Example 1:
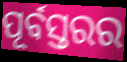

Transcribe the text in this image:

ପୂର୍ବସ୍ତରର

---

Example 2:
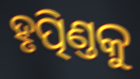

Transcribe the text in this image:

ହୃତ୍ପିଣ୍ତକୁ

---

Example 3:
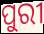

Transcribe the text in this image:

ପୁରୀ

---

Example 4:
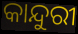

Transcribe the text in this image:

କାନ୍ଦୁରୀ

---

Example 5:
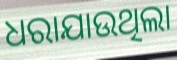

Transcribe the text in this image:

ଧରାଯାଉଥିଲା